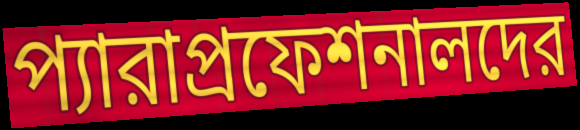
প্যারাপ্রফেশনালদের